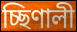
চ্ছিণালী